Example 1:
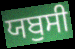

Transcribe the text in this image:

ਯਬੁਸੀ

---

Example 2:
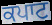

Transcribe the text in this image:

ਕਪਾਟ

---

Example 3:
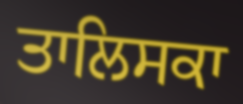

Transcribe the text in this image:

ਤਾਲਿਸਕਾ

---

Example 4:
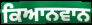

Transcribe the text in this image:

ਕਿਆਨਵਾਨ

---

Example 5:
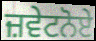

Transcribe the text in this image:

ਜ਼ਵੇਟਨੋਏ